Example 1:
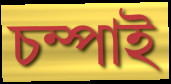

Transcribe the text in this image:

চম্পাই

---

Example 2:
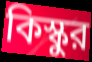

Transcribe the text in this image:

কিস্কুর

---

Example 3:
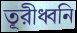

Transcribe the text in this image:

তূরীধ্বনি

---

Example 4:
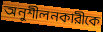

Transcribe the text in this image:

অনুশীলনকারীকে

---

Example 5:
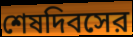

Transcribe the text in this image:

শেষদিবসের